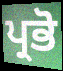
ਪ੍ਰਭੋ